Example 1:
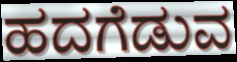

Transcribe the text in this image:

ಹದಗೆಡುವ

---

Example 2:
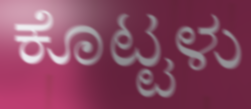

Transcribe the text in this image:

ಕೊಟ್ಟಳು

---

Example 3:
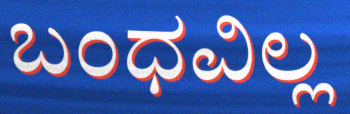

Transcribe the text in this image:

ಬಂಧವಿಲ್ಲ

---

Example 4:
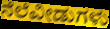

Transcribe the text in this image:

ನೆಲೆವೀಡುಗಳು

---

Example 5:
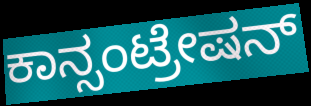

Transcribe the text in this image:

ಕಾನ್ಸಂಟ್ರೇಷನ್